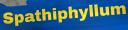
Spathiphyllum